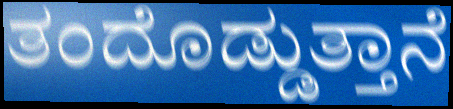
ತಂದೊಡ್ಡುತ್ತಾನೆ